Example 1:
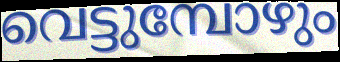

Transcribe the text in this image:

വെട്ടുമ്പോഴും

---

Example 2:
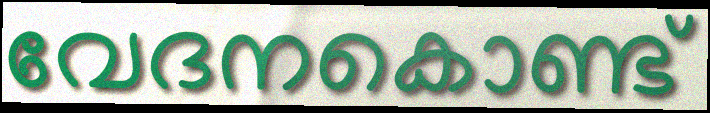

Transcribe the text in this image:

വേദനകൊണ്ട്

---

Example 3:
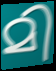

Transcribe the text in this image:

മി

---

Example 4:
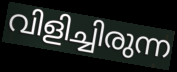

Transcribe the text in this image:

വിളിച്ചിരുന്ന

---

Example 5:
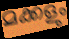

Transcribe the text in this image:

മക്കളും